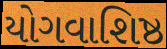
યોગવાશિષ્ઠ